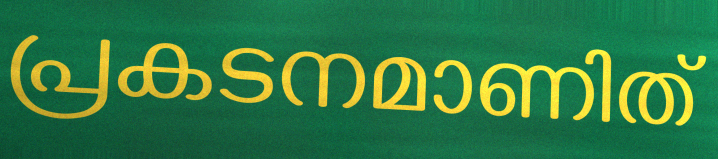
പ്രകടനമാണിത്